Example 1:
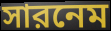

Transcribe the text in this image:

সারনেম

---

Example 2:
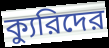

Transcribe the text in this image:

ক্যুরিদের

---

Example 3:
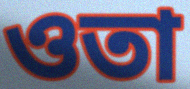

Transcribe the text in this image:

ওতা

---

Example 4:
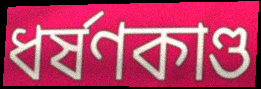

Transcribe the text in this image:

ধর্ষণকাণ্ড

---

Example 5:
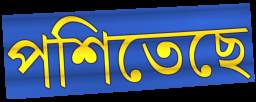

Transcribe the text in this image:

পশিতেছে